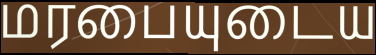
மரபையுடைய